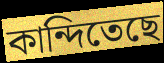
কান্দিতেছে